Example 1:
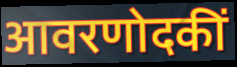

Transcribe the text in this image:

आवरणोदकीं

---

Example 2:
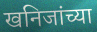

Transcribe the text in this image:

खनिजांच्या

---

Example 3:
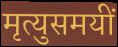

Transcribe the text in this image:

मृत्युसमयीं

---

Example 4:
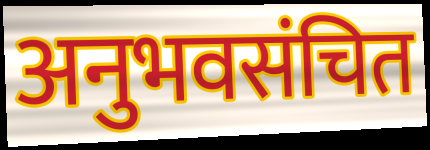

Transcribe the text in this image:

अनुभवसंचित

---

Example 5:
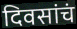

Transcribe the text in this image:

दिवसांचं